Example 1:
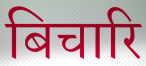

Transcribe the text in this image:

बिचारि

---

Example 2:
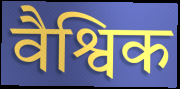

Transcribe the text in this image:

वैश्विक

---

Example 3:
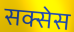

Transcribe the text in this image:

सक्सेस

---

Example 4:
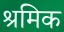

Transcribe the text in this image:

श्रमिक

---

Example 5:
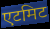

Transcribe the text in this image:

एटमिट